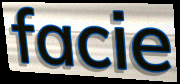
facie